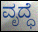
ವೃದ್ಧೆ